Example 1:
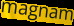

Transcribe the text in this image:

magnam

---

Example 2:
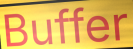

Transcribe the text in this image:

Buffer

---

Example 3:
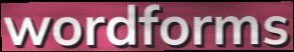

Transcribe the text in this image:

wordforms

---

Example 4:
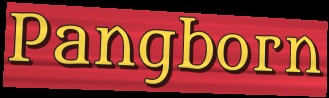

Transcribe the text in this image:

Pangborn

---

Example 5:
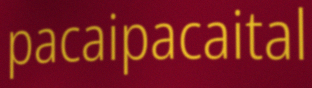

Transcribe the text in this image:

pacaipacaital